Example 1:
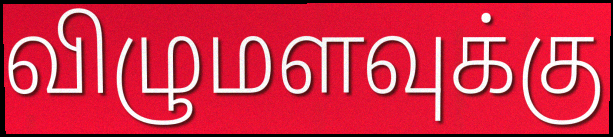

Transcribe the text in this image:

விழுமளவுக்கு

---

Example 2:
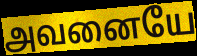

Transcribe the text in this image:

அவனையே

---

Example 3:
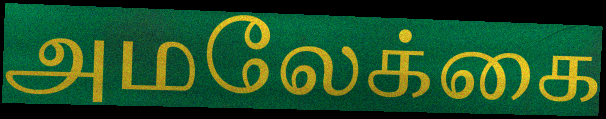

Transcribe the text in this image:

அமலேக்கை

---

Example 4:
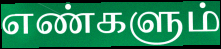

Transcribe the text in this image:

எண்களும்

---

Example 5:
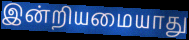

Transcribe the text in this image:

இன்றியமையாது